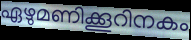
ഏഴുമണിക്കൂറിനകം